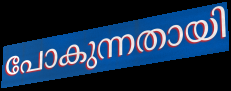
പോകുന്നതായി